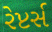
રેપ્ટર્સ